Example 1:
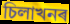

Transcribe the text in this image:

চিলাখনৰ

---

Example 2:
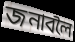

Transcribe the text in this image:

জনাবলৈ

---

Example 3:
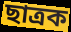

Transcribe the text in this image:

ছাত্ৰক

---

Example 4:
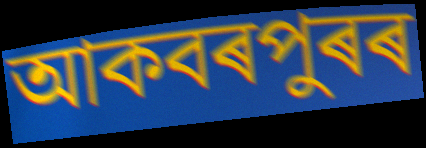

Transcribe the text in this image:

আকবৰপুৰৰ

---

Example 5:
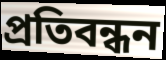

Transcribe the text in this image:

প্ৰতিবন্ধন